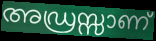
അഡ്രസ്സാണ്